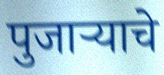
पुजाऱ्याचे